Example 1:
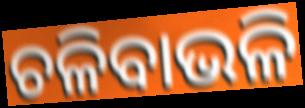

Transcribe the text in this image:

ଚଳିବାଭଳି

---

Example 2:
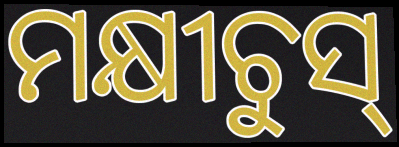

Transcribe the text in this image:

ମକ୍ଷୀଚୁସ୍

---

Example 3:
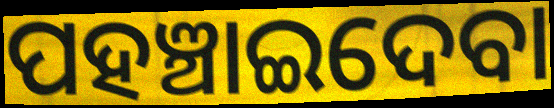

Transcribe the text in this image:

ପହଞ୍ଚାଇଦେବା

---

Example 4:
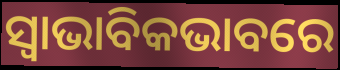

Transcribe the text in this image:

ସ୍ୱାଭାବିକଭାବରେ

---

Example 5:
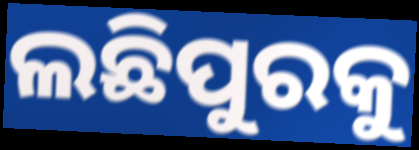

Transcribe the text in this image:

ଲଛିପୁରକୁ